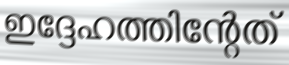
ഇദ്ദേഹത്തിന്റേത്